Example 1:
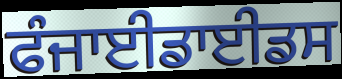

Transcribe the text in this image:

ਫੰਜਾਈਡਾਈਡਸ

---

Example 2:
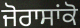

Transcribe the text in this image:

ਜੋਰਾਸਾਂਕੋ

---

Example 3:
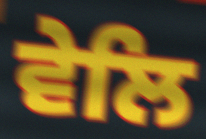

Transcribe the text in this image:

ਵੇਲਿ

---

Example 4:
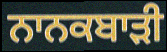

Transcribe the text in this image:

ਨਾਨਕਬਾੜੀ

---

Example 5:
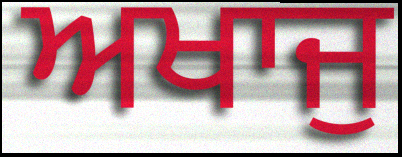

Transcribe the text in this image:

ਅਖਾਜੁ